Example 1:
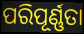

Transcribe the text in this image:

ପରିପୂର୍ଣ୍ଣତା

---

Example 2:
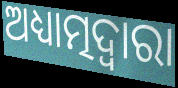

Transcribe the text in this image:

ଅଧ୍ୟାତ୍ମଦ୍ୱାରା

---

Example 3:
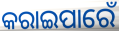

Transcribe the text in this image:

କରାଇପାରେଁ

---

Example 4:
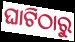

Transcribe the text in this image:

ଘାଟିଠାରୁ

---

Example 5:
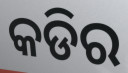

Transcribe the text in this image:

କଡିର